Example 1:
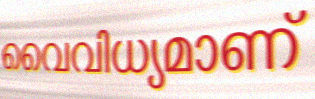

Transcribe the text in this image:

വൈവിധ്യമാണ്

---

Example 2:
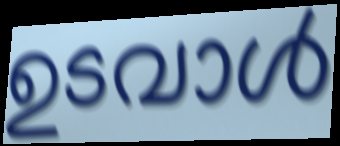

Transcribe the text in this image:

ഉടവാൾ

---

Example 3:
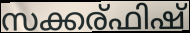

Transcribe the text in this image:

സക്കര്ഫിഷ്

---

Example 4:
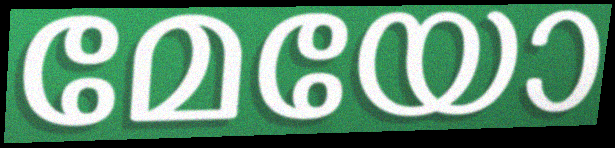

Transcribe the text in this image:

മേയോ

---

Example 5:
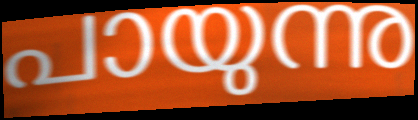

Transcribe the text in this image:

പായുന്നു